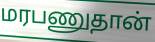
மரபணுதான்